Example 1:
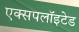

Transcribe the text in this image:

एक्सपलॉइटेड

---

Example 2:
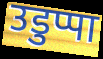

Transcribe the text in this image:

उडुप्पा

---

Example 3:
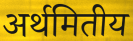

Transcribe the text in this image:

अर्थमितीय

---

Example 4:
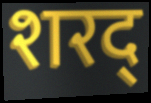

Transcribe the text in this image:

शरद्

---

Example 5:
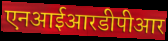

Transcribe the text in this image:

एनआईआरडीपीआर